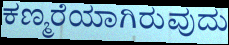
ಕಣ್ಮರೆಯಾಗಿರುವುದು